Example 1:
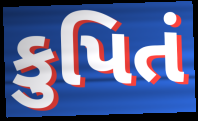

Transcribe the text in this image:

કુપિતં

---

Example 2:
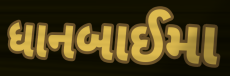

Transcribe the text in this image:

ધાનબાઈમા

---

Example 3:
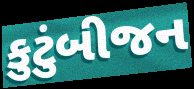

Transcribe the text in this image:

કુટુંબીજન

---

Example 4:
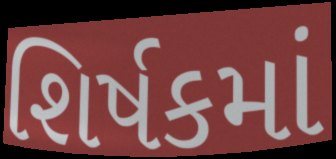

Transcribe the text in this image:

શિર્ષકમાં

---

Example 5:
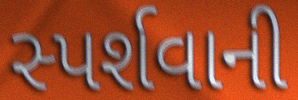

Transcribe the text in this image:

સ્પર્શવાની